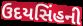
ઉદયસિંહની